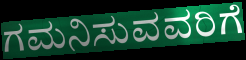
ಗಮನಿಸುವವರಿಗೆ